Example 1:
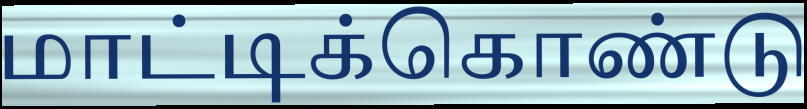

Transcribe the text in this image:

மாட்டிக்கொண்டு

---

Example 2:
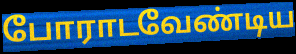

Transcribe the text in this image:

போராடவேண்டிய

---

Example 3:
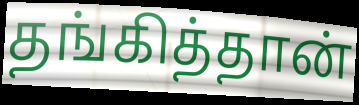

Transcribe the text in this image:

தங்கித்தான்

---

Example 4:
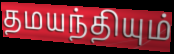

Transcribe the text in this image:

தமயந்தியும்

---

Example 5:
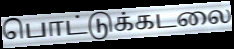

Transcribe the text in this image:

பொட்டுக்கடலை